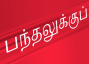
பந்தலுக்குப்